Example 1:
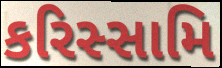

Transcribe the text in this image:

કરિસ્સામિ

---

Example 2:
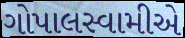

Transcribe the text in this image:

ગોપાલસ્વામીએ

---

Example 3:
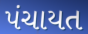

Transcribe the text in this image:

પંચાયત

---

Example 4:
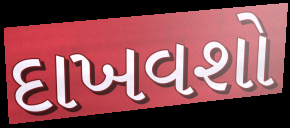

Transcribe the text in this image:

દાખવશો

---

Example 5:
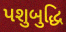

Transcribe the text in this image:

પશુબુદ્ધિ